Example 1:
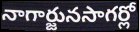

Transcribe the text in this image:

నాగార్జునసాగర్లో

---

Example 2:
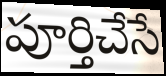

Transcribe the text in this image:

పూర్తిచేసే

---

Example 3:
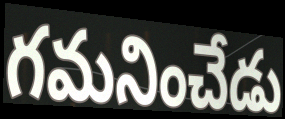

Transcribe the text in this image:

గమనించేడు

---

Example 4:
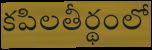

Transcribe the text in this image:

కపిలతీర్థంలో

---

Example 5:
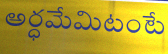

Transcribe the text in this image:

అర్ధమేమిటంటే